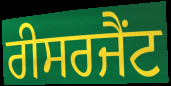
ਰੀਸਰਜੈਂਟ